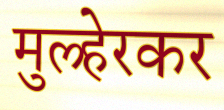
मुल्हेरकर